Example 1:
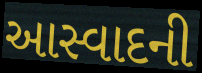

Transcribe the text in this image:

આસ્વાદની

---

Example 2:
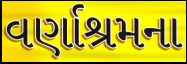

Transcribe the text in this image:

વર્ણાશ્રમના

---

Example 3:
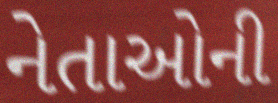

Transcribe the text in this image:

નેતાઓની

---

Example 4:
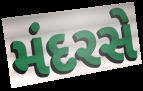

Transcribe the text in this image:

મંદરસે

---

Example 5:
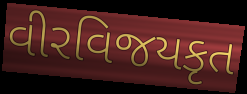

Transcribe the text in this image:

વીરવિજયકૃત